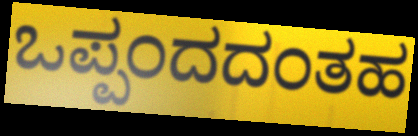
ಒಪ್ಪಂದದಂತಹ